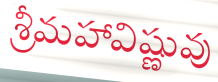
శ్రీమహావిష్ణువు